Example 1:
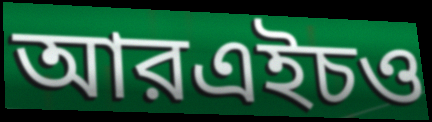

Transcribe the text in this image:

আরএইচও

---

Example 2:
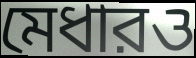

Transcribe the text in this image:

মেধারও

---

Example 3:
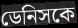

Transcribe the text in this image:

ডেনিসকে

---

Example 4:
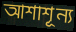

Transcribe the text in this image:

আশাশূন্য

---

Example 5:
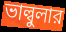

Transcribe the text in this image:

ভাল্বুলার